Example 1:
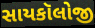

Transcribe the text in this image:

સાયકૉલોજી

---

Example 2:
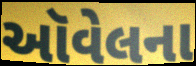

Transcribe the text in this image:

ઑવેલના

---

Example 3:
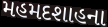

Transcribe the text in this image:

મહમદશાહના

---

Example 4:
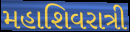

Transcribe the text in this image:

મહાશિવરાત્રી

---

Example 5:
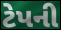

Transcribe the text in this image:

ટેપની